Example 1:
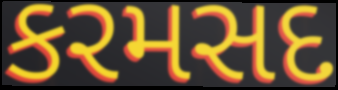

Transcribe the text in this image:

કરમસદ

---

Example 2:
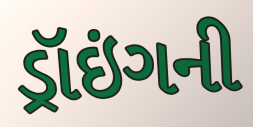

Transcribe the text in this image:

ડ્રૉઇંગની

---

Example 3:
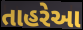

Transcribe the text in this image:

તાહરેઆ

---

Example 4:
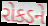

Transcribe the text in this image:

રોકડને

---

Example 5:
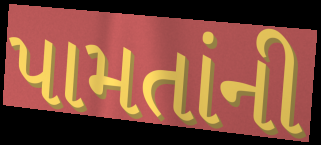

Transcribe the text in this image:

પામતાંની